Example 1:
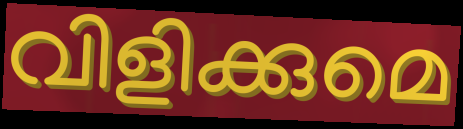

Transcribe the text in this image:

വിളിക്കുമെ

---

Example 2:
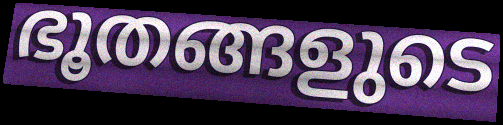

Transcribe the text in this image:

ഭൂതങ്ങളുടെ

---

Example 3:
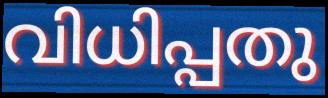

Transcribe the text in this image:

വിധിപ്പതു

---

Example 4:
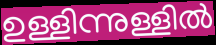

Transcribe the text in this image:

ഉള്ളിന്നുള്ളിൽ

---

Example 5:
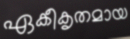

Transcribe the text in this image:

ഏകീകൃതമായ